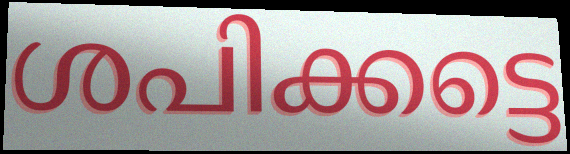
ശപിക്കട്ടെ